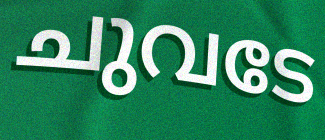
ചുവടേ